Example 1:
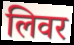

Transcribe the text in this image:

लिवर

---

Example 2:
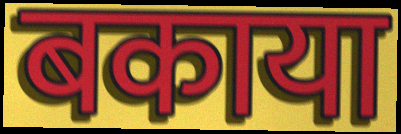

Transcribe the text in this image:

बकाया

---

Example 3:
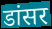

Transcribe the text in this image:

डांसर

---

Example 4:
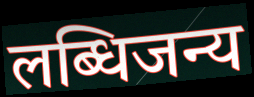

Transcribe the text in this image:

लब्धिजन्य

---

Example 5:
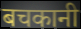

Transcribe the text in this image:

बचकानी